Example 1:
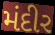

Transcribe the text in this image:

મંદીર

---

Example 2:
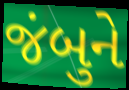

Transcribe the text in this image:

જંબુને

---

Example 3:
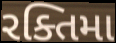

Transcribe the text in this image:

રક્તિમા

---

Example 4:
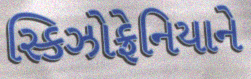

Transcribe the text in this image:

સ્કિઝોફ્રેનિયાને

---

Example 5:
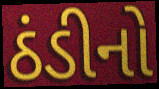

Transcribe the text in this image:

ઠંડીનો